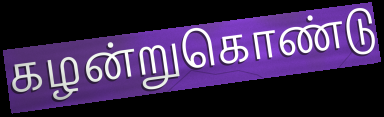
கழன்றுகொண்டு